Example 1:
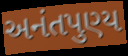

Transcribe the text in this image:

અનંતપુણ્ય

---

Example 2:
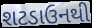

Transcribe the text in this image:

શટડાઉનથી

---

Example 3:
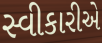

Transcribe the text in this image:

સ્વીકારીએ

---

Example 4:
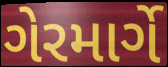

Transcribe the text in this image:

ગેરમાર્ગે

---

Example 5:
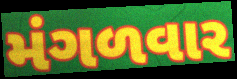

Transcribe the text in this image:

મંગળવાર